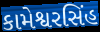
કામેશ્વરસિંહ